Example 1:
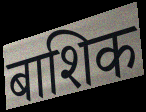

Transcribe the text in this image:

बाशिक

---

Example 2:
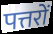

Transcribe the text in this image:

पत्तरों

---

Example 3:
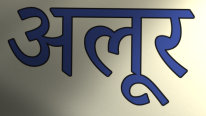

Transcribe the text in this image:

अलूर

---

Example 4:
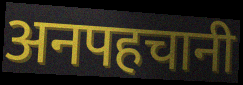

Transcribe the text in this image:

अनपहचानी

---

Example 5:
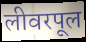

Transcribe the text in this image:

लीवरपूल